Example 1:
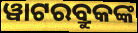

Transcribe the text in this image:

ୱାଟରବ୍ରୁକଙ୍କ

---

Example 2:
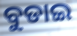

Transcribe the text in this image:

ବୁଡାଇ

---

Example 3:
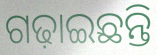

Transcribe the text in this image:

ଗଢ଼ାଇଛନ୍ତି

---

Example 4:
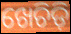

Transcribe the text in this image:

ଖେଚିଡ଼ି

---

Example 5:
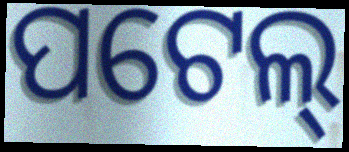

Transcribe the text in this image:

ପଟେଲ୍